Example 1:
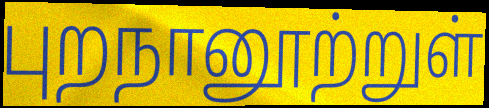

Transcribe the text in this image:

புறநானூற்றுள்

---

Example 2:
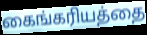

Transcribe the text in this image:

கைங்கரியத்தை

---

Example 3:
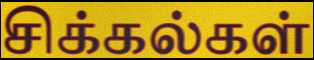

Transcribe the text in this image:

சிக்கல்கள்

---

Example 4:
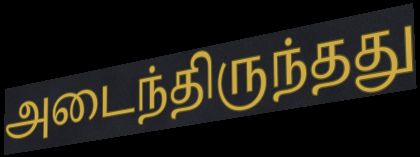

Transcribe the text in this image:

அடைந்திருந்தது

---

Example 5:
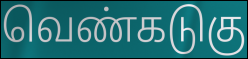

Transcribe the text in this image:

வெண்கடுகு